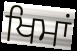
ਖਿਮਾਂ